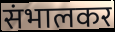
संभालकर